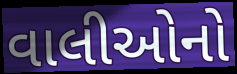
વાલીઓનો